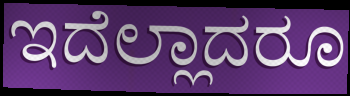
ಇದೆಲ್ಲಾದರೂ